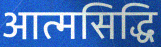
आत्मसिद्धि